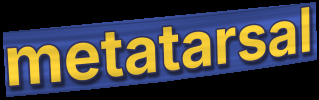
metatarsal